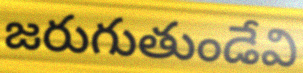
జరుగుతుండేవి